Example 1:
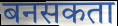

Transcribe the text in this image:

बनसकता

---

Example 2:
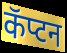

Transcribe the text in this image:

कॅप्टन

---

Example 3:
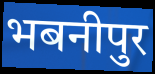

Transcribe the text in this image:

भबनीपुर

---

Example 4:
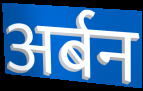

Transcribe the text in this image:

अर्बन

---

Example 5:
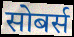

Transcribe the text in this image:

सोबर्स